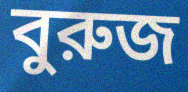
বুরুজ